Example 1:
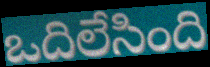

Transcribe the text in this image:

ఒదిలేసింది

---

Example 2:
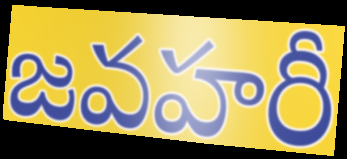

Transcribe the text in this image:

జవహరీ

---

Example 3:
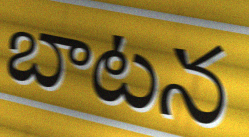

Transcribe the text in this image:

బాటన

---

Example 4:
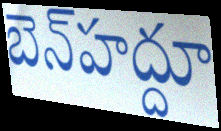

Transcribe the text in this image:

బెన్‍హద్దూ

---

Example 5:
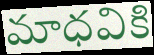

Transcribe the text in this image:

మాధవికి